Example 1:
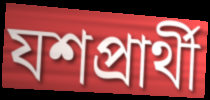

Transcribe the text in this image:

যশপ্রার্থী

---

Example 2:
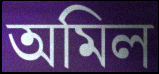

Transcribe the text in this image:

অমিল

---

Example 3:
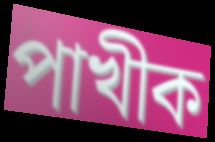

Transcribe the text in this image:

পাখীক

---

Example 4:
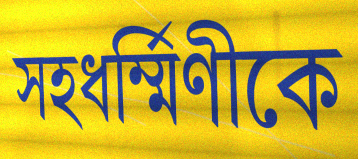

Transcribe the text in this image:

সহধর্ম্মিণীকে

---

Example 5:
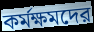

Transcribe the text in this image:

কর্মক্ষমদের